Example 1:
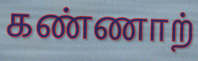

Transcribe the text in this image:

கண்ணாற்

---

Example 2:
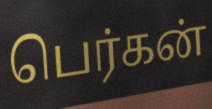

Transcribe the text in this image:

பெர்கன்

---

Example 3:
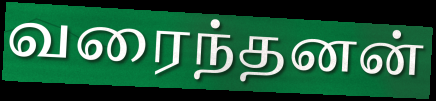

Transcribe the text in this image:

வரைந்தனன்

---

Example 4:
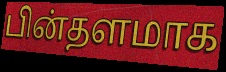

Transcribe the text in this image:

பின்தளமாக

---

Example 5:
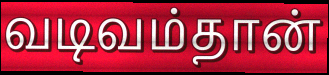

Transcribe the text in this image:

வடிவம்தான்